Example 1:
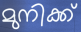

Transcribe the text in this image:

മുനിക്ക്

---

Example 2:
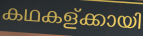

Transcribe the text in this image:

കഥകള്ക്കായി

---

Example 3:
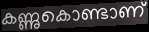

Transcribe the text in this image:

കണ്ണുകൊണ്ടാണ്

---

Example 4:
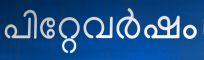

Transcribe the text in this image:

പിറ്റേവർഷം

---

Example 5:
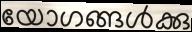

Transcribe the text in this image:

യോഗങ്ങൾക്കു